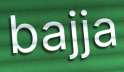
bajja